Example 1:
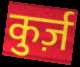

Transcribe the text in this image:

कुर्ज़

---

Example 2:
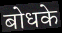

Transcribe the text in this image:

बोधके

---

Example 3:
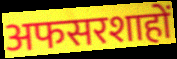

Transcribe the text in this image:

अफसरशाहों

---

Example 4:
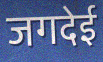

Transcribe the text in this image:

जगदेई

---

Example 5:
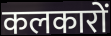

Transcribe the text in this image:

कलकारों